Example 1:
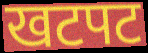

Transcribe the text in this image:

खटपट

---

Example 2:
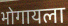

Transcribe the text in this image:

भोगायला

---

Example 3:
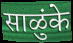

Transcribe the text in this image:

साळुंके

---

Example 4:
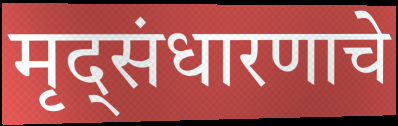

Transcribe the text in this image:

मृद्संधारणाचे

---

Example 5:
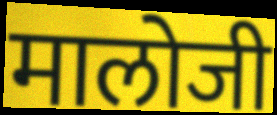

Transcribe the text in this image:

मालोजी